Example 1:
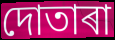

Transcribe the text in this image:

দোতাৰা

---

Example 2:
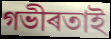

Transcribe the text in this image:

গভীৰতাই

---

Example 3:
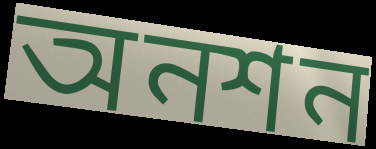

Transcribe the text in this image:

অনশন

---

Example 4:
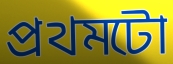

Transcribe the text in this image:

প্ৰথমটো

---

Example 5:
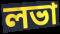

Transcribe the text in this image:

লভা